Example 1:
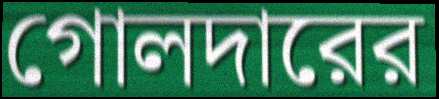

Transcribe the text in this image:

গোলদারের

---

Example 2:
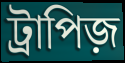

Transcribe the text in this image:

ট্রাপিজ়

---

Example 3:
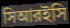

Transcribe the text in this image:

সিআরইসি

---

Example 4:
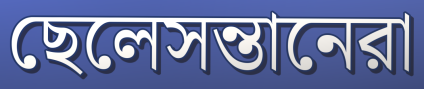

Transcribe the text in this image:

ছেলেসন্তানেরা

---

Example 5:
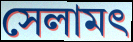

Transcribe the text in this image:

সেলামৎ